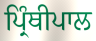
ਪ੍ਰਿੰਥੀਪਾਲ